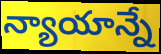
న్యాయాన్నే